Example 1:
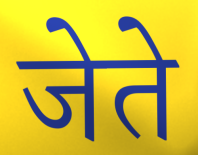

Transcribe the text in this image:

जेते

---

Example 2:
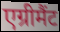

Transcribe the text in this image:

एग्रीमैंट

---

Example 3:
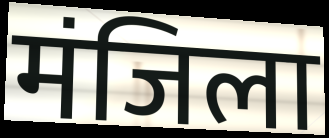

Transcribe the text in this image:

मंजिला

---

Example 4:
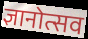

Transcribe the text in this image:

ज्ञानोत्सव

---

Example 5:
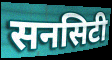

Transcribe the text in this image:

सनसिटी